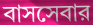
বাসসেবার